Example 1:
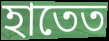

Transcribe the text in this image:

হাতেত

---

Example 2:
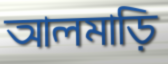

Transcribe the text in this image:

আলমাড়ি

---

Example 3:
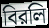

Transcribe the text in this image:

বিরলি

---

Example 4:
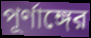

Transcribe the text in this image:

পূর্ণাঙ্গের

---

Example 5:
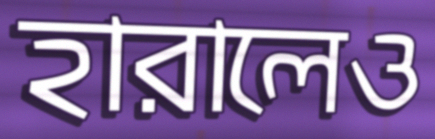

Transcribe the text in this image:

হারালেও